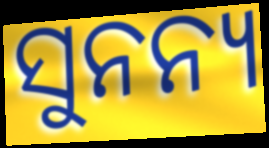
ସୁନନ୍ୟ